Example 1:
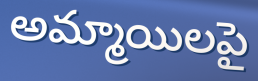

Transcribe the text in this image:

అమ్మాయిలపై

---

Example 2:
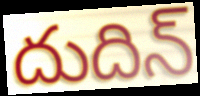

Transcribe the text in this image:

దుదిన్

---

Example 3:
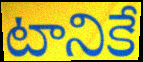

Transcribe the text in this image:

టానికే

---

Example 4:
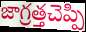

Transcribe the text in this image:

జాగ్రత్తచెప్పి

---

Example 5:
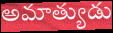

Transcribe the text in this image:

అమాత్యుడు